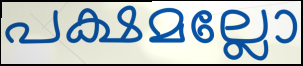
പക്ഷമല്ലോ